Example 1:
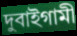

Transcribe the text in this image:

দুবাইগামী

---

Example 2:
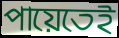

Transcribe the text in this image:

পায়েতেই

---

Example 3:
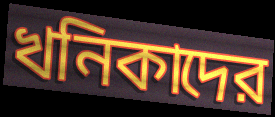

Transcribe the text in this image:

খনিকাদের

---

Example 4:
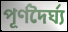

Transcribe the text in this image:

পূর্ণদৈর্ঘ্য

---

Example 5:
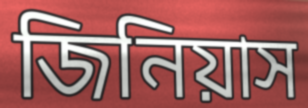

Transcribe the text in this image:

জিনিয়াস